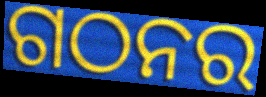
ଗଠନର